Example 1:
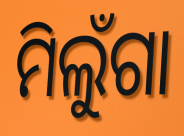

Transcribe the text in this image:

ମିଲୁଁଗା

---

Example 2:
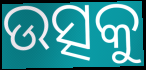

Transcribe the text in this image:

ଉତ୍ସକୁ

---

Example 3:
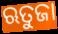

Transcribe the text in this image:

ଋତୁଜା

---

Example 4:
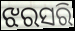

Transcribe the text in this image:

ଝରସରି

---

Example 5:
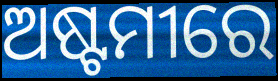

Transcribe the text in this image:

ଅଷ୍ଟମୀରେ